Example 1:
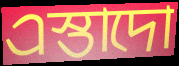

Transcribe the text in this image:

এস্তাদো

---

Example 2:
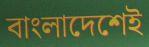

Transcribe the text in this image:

বাংলাদেশেই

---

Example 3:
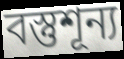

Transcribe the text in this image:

বস্তুশূন্য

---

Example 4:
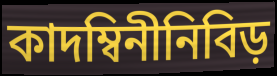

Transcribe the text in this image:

কাদম্বিনীনিবিড়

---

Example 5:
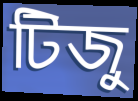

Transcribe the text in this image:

টিজু